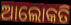
ଆଲୋକତି